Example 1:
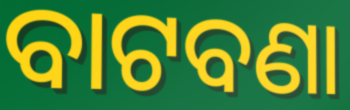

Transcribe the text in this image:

ବାଟବଣା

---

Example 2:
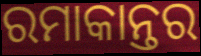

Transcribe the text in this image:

ରମାକାନ୍ତର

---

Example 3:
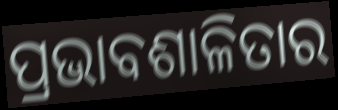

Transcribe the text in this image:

ପ୍ରଭାବଶାଳିତାର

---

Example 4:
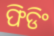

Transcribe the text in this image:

ଫିଡିଂ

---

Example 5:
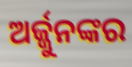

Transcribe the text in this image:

ଅର୍ଜ୍ଜୁନଙ୍କର